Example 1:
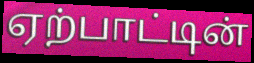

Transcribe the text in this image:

ஏற்பாட்டின்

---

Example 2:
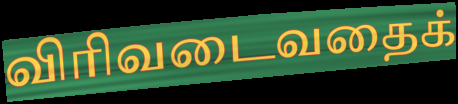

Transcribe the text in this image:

விரிவடைவதைக்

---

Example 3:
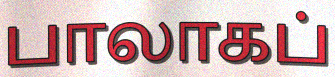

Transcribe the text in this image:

பாலாகப்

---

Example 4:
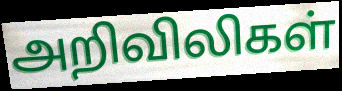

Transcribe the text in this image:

அறிவிலிகள்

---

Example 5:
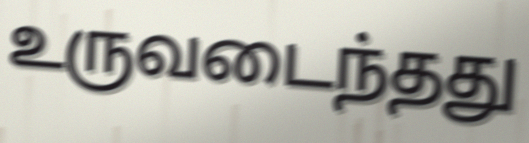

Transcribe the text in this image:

உருவடைந்தது